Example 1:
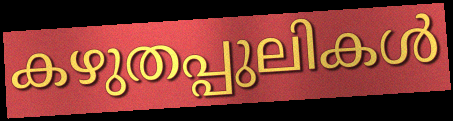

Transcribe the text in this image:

കഴുതപ്പുലികൾ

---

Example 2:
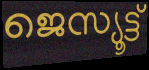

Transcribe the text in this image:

ജെസ്യൂട്ട്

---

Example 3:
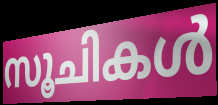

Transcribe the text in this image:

സൂചികൾ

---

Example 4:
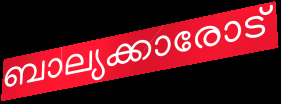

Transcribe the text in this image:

ബാല്യക്കാരോട്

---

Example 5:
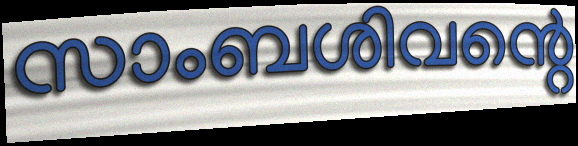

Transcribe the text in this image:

സാംബശിവന്റെ